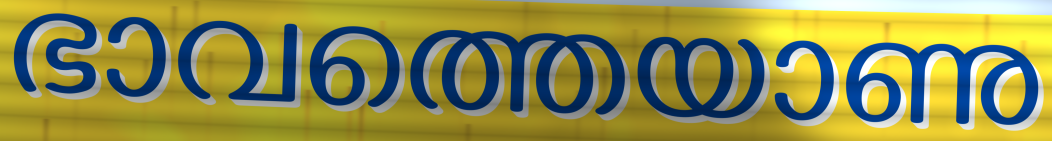
ഭാവത്തെയാണു